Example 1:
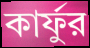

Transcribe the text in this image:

কার্ফুর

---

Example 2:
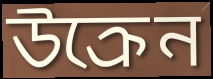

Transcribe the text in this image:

উক্রেন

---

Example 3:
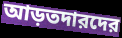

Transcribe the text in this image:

আড়তদারদের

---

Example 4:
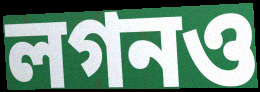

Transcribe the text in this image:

লগনও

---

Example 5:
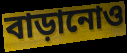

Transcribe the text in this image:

বাড়ানোও